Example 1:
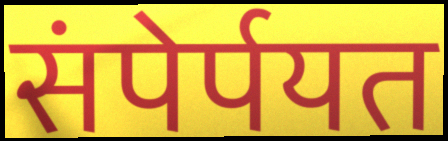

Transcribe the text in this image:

संपेर्पयत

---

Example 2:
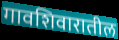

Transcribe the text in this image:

गावशिवारातील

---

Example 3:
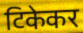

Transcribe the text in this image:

टिकेकर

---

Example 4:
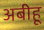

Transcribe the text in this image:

अबीहू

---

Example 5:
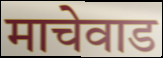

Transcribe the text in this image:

माचेवाड